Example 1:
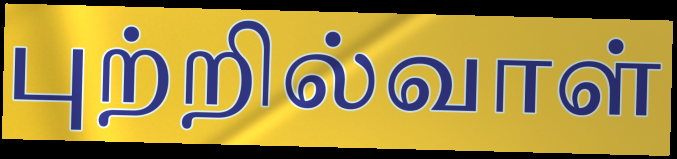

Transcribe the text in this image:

புற்றில்வாள்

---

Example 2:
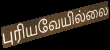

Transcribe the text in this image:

புரியவேயில்லை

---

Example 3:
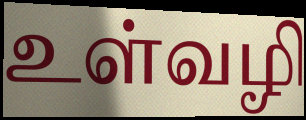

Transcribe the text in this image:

உள்வழி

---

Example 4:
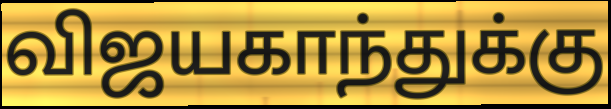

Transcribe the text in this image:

விஜயகாந்துக்கு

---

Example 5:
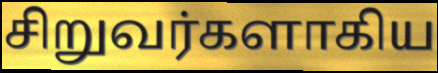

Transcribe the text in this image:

சிறுவர்களாகிய